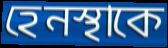
হেনস্থাকে